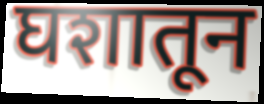
घशातून